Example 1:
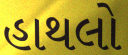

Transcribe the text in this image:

હાથલો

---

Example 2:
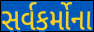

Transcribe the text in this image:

સર્વકર્મોના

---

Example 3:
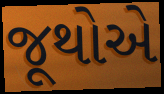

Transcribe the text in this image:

જૂથોએ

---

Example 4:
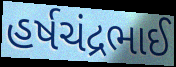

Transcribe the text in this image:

હર્ષચંદ્રભાઈ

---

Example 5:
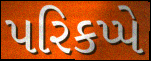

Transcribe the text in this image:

પરિકપ્પે